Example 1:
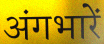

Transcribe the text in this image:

अंगभारें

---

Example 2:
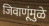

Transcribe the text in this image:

जिवाणूंमुळे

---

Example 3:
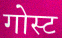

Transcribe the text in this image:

गोस्ट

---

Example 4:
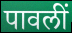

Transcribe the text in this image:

पावलीं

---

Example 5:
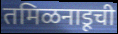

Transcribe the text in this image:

तमिळनाडूची